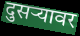
दुसऱ्यावर